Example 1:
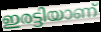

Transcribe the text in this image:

ഇരട്ടിയാണ്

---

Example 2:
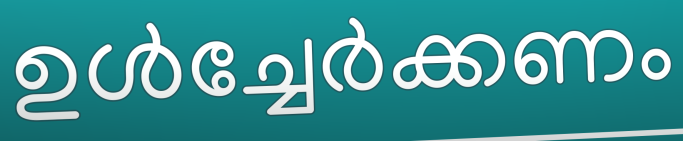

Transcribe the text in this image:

ഉൾച്ചേർക്കണം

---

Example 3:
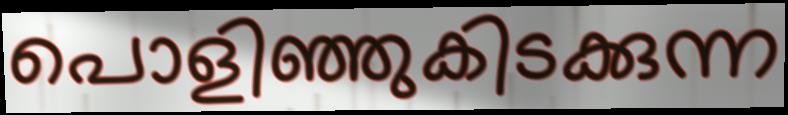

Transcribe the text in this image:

പൊളിഞ്ഞുകിടക്കുന്ന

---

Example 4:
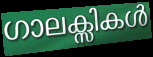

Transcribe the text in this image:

ഗാലക്സികൾ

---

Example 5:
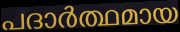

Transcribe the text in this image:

പദാർത്ഥമായ